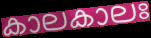
കാലകാലഃ